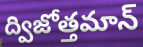
ద్విజోత్తమాన్